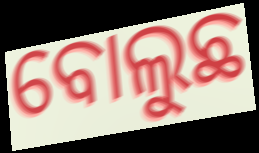
ବୋଲୁଛ